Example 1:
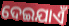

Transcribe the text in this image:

ଦେଇଯାଏଁ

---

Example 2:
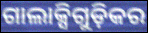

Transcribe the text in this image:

ଗାଲାକ୍ସିଗୁଡ଼ିକର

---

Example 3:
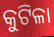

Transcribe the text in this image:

କୁଟିଳା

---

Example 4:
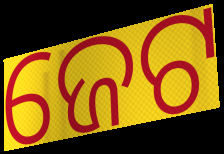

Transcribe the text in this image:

ଜେଟ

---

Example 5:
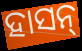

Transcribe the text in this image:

ହାସନ୍